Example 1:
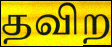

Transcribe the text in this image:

தவிற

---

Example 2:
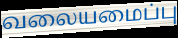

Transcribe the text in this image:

வலையமைப்பு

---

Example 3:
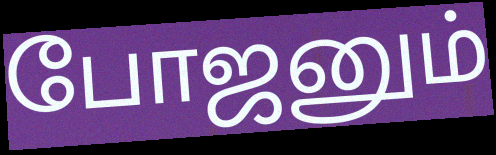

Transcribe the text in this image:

போஜனும்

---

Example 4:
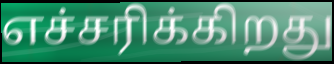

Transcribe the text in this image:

எச்சரிக்கிறது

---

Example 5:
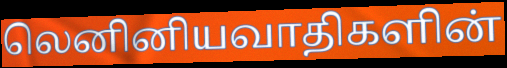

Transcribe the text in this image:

லெனினியவாதிகளின்